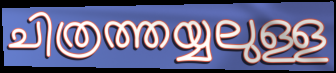
ചിത്രത്തയ്യലുള്ള